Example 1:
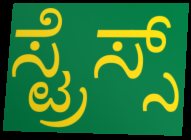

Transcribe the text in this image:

ಸ್ಟ್ರೆಸ್ಸ್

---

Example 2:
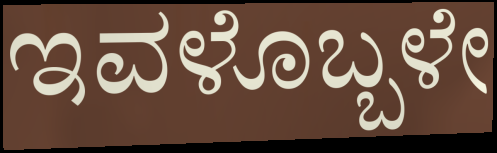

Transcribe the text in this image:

ಇವಳೊಬ್ಬಳೇ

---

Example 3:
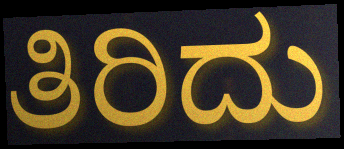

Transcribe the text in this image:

ತಿರಿದು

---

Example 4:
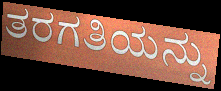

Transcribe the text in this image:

ತರಗತಿಯನ್ನು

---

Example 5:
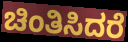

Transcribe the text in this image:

ಚಿಂತಿಸಿದರೆ